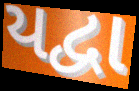
યદ્વા